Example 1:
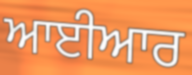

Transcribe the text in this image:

ਆਈਆਰ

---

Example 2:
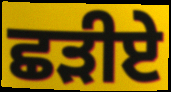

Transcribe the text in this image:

ਛੜੀਏ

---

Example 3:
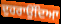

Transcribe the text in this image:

ਦੁਹਰਾਉਂਦਿਆ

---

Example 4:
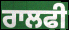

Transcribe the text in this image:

ਰਾਲਫੀ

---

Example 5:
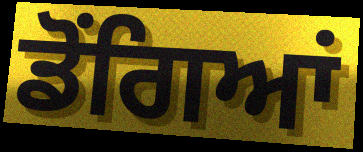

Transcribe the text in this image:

ਡੋਂਗਿਆਂ